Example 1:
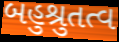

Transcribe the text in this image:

બહુશ્રુતત્વ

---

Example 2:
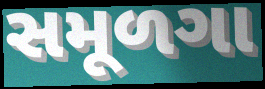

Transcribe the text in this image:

સમૂળગા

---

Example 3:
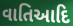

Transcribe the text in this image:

વાતિઆદિ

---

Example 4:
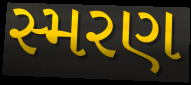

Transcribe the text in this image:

સ્‍મરણ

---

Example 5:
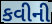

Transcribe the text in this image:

કવીની